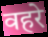
वहरे